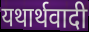
यथार्थवादी